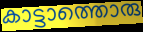
കാട്ടാത്തൊരു